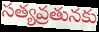
సత్యవ్రతునకు